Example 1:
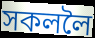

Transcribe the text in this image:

সকললৈ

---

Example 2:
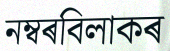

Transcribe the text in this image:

নম্বৰবিলাকৰ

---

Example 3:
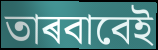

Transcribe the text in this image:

তাৰবাবেই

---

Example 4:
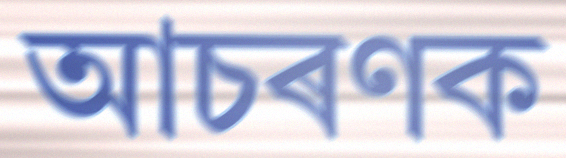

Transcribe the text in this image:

আচৰণক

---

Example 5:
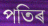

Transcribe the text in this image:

পতিৰ